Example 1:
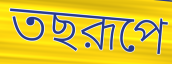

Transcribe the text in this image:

তছরূপে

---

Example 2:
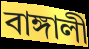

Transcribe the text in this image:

বাঙ্গালী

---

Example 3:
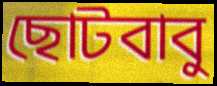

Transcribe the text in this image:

ছোটবাবু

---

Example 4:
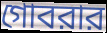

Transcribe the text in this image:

গোবরার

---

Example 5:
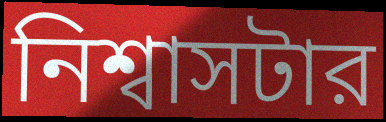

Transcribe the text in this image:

নিশ্বাসটার